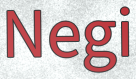
Negi